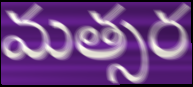
మత్సర